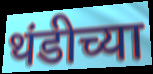
थंडीच्या